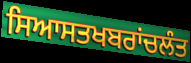
ਸਿਆਸਤਖਬਰਾਂਚਲੰਤ